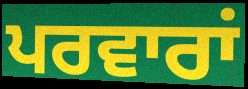
ਪਰਵਾਰਾਂ